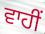
ਵਾਹੀਂ